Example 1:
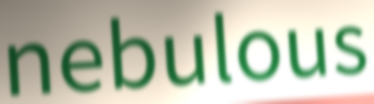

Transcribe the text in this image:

nebulous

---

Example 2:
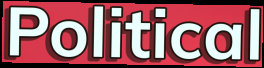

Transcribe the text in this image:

Political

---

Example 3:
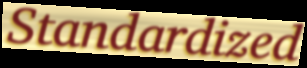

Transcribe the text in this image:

Standardized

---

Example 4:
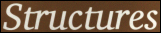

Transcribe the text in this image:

Structures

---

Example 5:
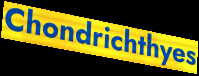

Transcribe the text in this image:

Chondrichthyes